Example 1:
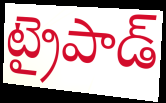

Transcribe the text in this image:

ట్రైపాడ్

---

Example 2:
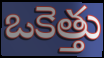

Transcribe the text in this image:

ఒకెత్తు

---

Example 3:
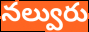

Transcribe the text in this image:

నల్వురు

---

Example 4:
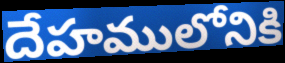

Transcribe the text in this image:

దేహములోనికి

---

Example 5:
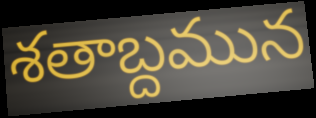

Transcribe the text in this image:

శతాబ్దమున